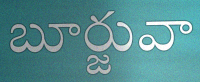
బూర్జువా